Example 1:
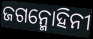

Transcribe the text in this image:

ଜଗନ୍ମୋହିନୀ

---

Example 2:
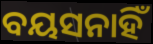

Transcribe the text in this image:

ବୟସନାହିଁ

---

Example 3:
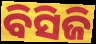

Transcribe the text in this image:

ବିସିଜି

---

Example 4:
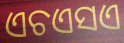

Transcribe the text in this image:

ଏଚଏସଏ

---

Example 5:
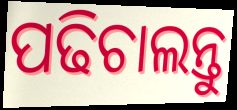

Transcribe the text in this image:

ପଢିଚାଲନ୍ତୁ